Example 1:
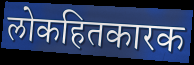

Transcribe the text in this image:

लोकहितकारक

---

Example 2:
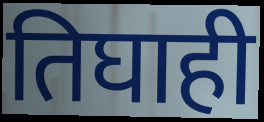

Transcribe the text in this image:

तिघाही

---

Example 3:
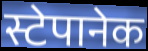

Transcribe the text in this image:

स्टेपानेक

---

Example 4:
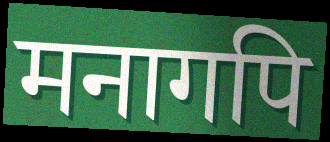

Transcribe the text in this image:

मनागपि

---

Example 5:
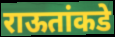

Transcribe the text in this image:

राऊतांकडे